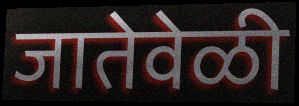
जातेवेळी